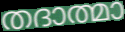
തദാത്മാ